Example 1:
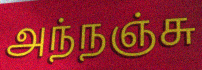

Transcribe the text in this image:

அந்நஞ்சு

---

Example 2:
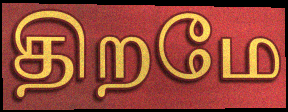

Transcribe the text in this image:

திறமே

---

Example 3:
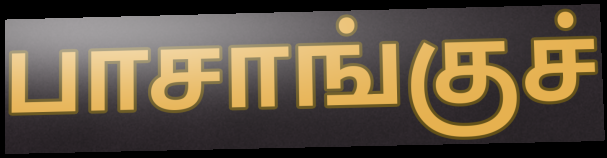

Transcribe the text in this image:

பாசாங்குச்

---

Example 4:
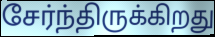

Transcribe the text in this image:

சேர்ந்திருக்கிறது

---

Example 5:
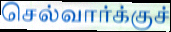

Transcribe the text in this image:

செல்வார்க்குச்